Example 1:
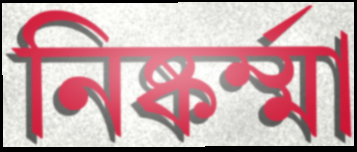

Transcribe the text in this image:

নিষ্কর্ম্মা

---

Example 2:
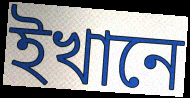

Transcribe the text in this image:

ইখানে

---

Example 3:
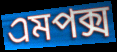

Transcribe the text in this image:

এমপক্স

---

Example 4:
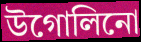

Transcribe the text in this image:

উগোলিনো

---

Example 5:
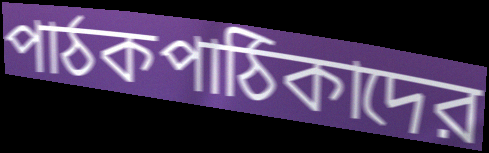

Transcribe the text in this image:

পাঠকপাঠিকাদের